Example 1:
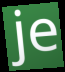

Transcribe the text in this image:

je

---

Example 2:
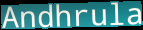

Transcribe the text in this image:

Andhrula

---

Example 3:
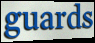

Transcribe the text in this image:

guards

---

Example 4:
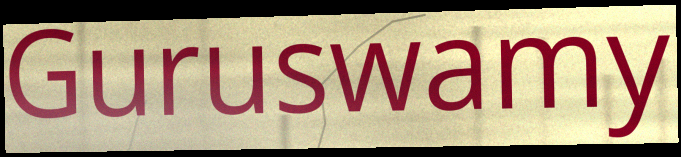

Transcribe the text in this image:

Guruswamy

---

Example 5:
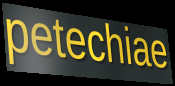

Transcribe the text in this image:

petechiae